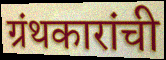
ग्रंथकारांची